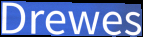
Drewes